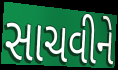
સાચવીને